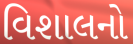
વિશાલનો